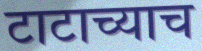
टाटाच्याच